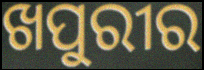
ଖପୁରୀର